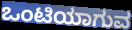
ಒಂಟಿಯಾಗುವ